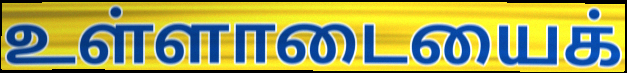
உள்ளாடையைக்